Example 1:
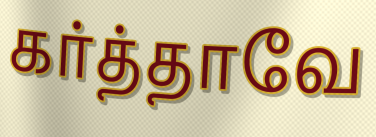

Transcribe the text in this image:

கர்த்தாவே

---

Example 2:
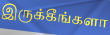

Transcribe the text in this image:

இருக்கீங்களா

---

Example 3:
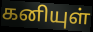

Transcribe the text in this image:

கனியுள்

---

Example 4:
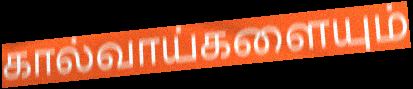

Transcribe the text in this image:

கால்வாய்களையும்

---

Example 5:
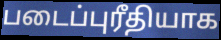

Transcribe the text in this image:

படைப்புரீதியாக